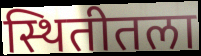
स्थितीतला